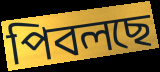
পিবলছে